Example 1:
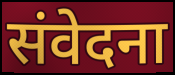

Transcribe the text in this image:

संवेदना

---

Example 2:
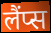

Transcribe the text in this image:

लैंप्स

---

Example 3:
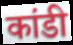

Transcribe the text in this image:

कांडी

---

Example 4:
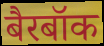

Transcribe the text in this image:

बैरबॉक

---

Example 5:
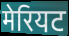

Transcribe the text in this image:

मेरियट